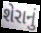
શેરાનું